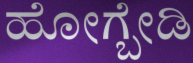
ಹೋಗ್ಬೇಡಿ